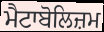
ਮੈਟਾਬੋਲਿਜ਼ਮ